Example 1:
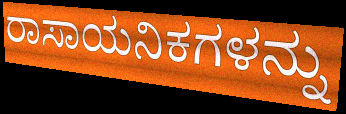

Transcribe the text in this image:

ರಾಸಾಯನಿಕಗಳನ್ನು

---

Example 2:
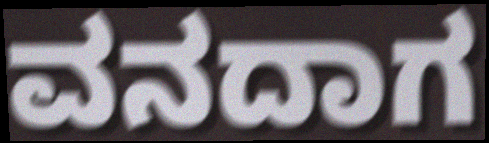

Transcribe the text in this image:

ವನದಾಗ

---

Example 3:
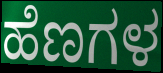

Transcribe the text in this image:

ಹೆಣಗಳ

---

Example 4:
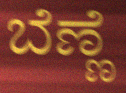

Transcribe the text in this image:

ಬೆಣ್ಣೆ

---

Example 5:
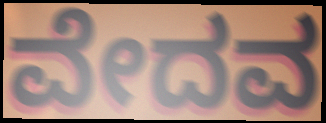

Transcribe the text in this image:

ವೇದವ